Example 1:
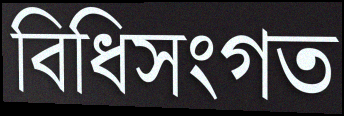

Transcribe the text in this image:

বিধিসংগত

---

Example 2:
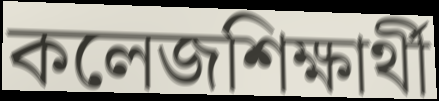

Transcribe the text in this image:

কলেজশিক্ষার্থী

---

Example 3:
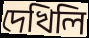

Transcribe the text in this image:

দেখিলি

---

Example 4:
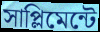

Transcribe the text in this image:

সাপ্লিমেন্টে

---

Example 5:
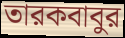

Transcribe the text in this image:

তারকবাবুর